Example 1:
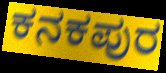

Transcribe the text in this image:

ಕನಕಪುರ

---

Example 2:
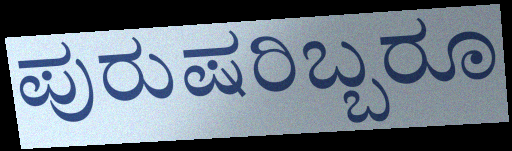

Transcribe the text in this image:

ಪುರುಷರಿಬ್ಬರೂ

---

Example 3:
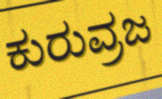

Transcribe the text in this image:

ಕುರುವ್ರಜ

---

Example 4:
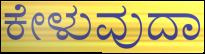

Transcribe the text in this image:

ಕೇಳುವುದಾ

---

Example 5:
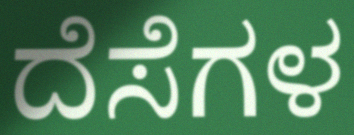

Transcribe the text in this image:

ದೆಸೆಗಳ